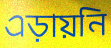
এড়ায়নি